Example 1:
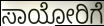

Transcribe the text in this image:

ಸಾಯೋರಿಗೆ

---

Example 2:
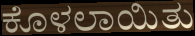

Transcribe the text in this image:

ಕೊಳಲಾಯಿತು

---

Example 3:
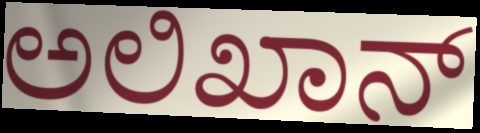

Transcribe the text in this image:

ಅಲಿಖಾನ್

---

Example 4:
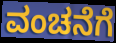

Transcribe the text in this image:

ವಂಚನೆಗೆ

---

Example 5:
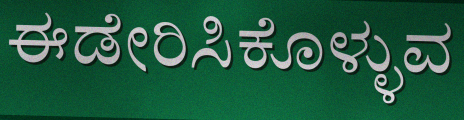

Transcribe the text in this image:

ಈಡೇರಿಸಿಕೊಳ್ಳುವ